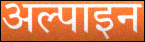
अल्पाइन